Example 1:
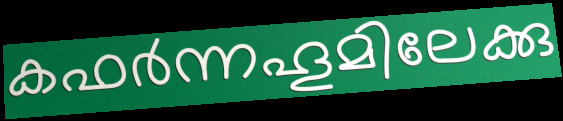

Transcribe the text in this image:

കഫർന്നഹൂമിലേക്കു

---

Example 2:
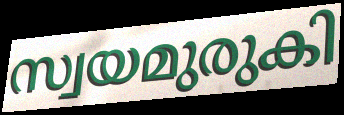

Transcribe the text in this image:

സ്വയമുരുകി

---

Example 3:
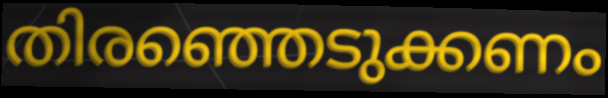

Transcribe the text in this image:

തിരഞ്ഞെടുക്കണം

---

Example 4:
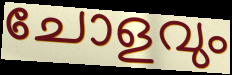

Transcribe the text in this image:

ചോളവും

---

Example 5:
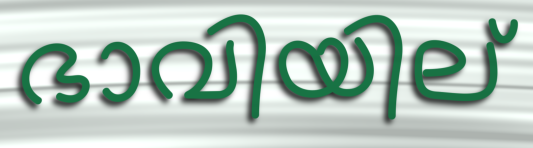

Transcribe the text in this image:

ഭാവിയില്